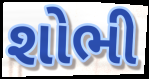
શોભી